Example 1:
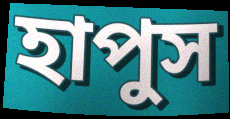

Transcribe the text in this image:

হাপুস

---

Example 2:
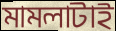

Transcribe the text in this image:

মামলাটাই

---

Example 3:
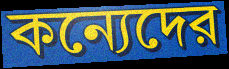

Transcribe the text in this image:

কন্যেদের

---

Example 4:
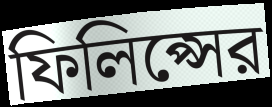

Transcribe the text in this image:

ফিলিপ্সের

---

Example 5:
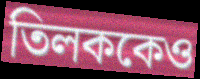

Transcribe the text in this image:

তিলককেও